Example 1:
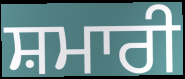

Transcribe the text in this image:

ਸ਼ਮਾਰੀ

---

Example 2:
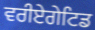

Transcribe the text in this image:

ਵਰੀਏਗੇਟਿਡ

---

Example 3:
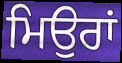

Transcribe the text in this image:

ਮਿਉਰਾਂ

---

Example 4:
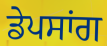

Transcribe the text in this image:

ਡੇਪਸਾਂਗ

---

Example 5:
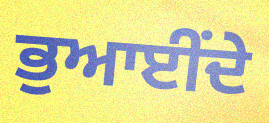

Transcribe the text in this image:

ਭੁਆਈਂਦੇ